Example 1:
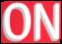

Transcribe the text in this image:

ON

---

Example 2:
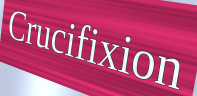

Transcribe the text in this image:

Crucifixion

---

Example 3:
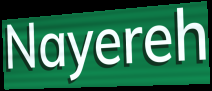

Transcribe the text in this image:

Nayereh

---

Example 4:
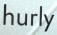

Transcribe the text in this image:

hurly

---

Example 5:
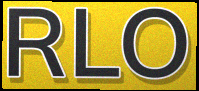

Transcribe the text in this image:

RLO